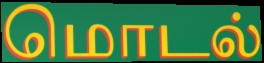
மொடல்